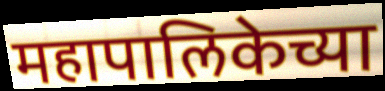
महापालिकेच्या